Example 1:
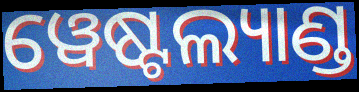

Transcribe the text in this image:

ୱେଷ୍ଟଲ୍ୟାଣ୍ଡ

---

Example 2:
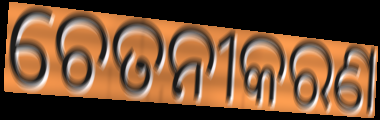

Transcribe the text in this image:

ଚେତନୀକରଣ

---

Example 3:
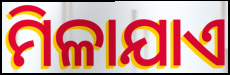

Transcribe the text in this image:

ମିଳାଯାଏ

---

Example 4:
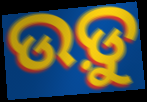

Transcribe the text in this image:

ଉଡ଼ୁ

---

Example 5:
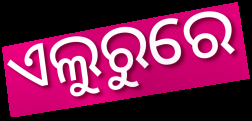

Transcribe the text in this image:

ଏଲୁରୁରେ